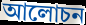
আলোচন